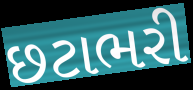
છટાભરી